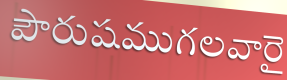
పౌరుషముగలవారై